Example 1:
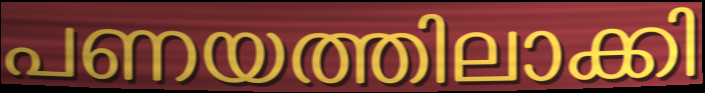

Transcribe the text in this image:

പണയത്തിലാക്കി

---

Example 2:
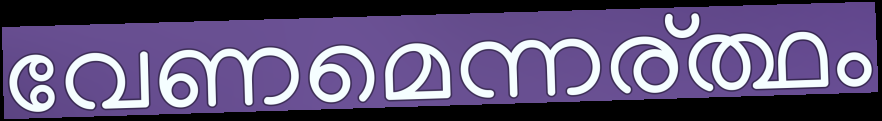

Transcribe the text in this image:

വേണമെന്നര്ത്ഥം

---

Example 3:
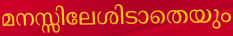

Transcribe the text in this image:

മനസ്സിലേശിടാതെയും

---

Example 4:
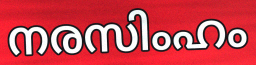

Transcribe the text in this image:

നരസിംഹം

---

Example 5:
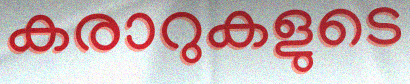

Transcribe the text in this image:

കരാറുകളുടെ